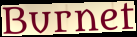
Burnet